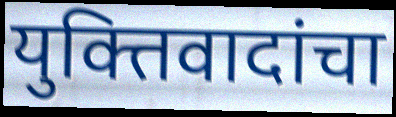
युक्तिवादांचा